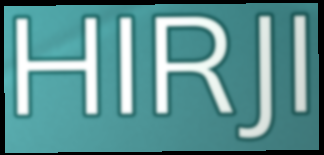
HIRJI